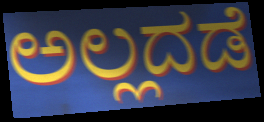
ಅಲ್ಲದಡೆ